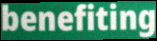
benefiting